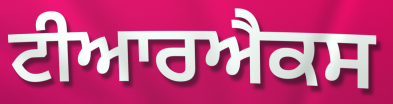
ਟੀਆਰਐਕਸ